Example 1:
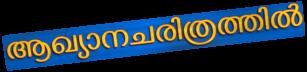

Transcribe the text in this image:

ആഖ്യാനചരിത്രത്തിൽ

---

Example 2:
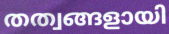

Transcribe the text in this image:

തത്വങ്ങളായി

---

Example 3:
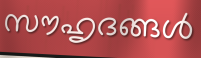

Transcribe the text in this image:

സൗഹൃദങ്ങൾ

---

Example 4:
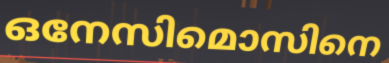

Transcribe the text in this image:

ഒനേസിമൊസിനെ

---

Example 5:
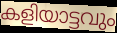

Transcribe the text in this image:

കളിയാട്ടവും